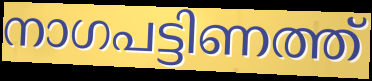
നാഗപട്ടിണത്ത്